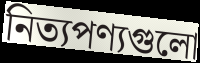
নিত্যপণ্যগুলো